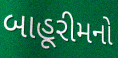
બાહૂરીમનો